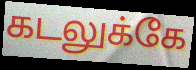
கடலுக்கே